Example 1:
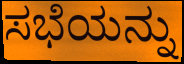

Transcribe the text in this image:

ಸಭೆಯನ್ನು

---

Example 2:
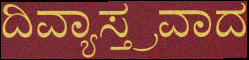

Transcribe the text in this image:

ದಿವ್ಯಾಸ್ತ್ರವಾದ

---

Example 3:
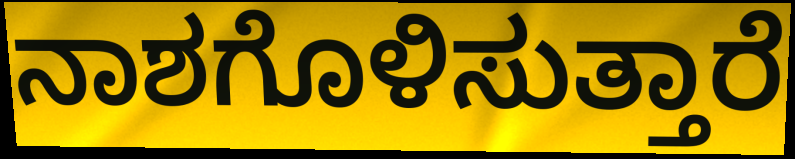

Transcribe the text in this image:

ನಾಶಗೊಳಿಸುತ್ತಾರೆ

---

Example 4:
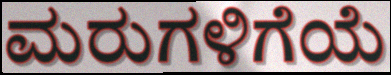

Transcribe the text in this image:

ಮರುಗಳಿಗೆಯೆ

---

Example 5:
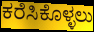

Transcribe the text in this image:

ಕರೆಸಿಕೊಳ್ಳಲು